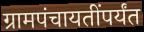
ग्रामपंचायतींपर्यंत